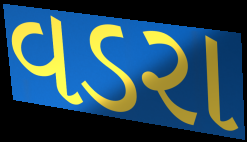
વડરા